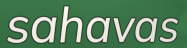
sahavas